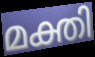
മക്തി